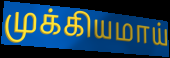
முக்கியமாய்